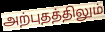
அற்புதத்திலும்